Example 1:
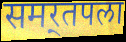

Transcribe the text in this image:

समर्तपला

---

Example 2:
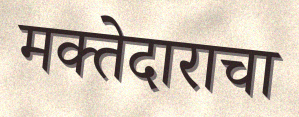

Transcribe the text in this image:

मक्तेदाराचा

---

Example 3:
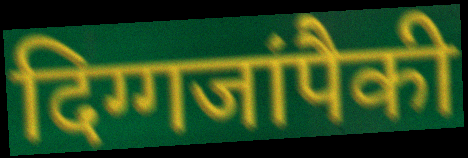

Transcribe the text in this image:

दिग्गजांपैकी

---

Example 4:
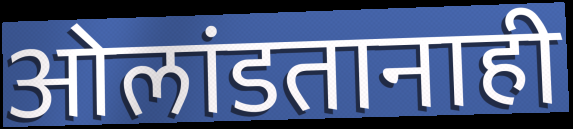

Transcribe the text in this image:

ओलांडतानाही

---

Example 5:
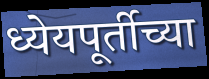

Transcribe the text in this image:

ध्येयपूर्तीच्या